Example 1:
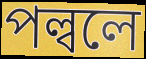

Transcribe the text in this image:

পল্বলে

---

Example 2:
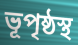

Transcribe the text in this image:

ভূপৃষ্ঠস্থ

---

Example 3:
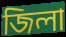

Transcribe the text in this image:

জিলা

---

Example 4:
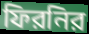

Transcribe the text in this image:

ফিরনির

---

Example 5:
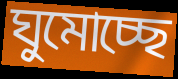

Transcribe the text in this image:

ঘুমোচ্ছে